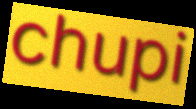
chupi